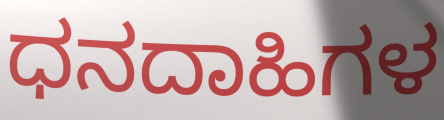
ಧನದಾಹಿಗಳ